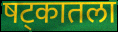
षट्कातला